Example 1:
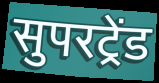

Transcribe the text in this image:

सुपरट्रेंड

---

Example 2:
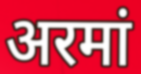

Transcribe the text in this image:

अरमां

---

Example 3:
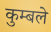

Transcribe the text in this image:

कुम्बले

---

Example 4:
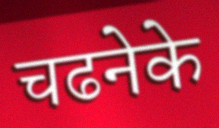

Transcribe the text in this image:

चढनेके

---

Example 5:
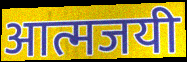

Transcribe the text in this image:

आत्मजयी